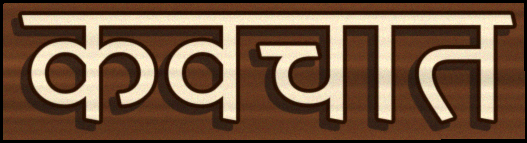
कवचात